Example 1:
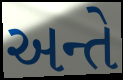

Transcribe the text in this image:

અન્તે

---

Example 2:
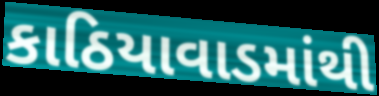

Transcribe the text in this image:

કાઠિયાવાડમાંથી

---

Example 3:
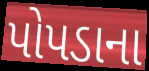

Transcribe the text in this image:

પોપડાના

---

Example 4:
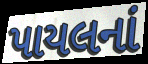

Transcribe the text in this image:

પાયલનાં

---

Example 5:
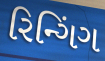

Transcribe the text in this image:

રિન્ગિંગ